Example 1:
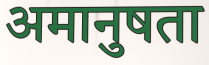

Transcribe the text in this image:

अमानुषता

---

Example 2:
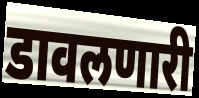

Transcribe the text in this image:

डावलणारी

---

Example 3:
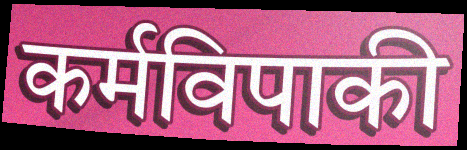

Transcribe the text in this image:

कर्मविपाकी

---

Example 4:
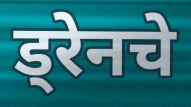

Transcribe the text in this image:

ड्रेनचे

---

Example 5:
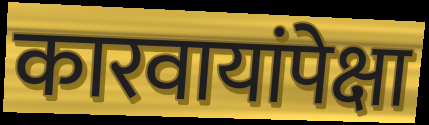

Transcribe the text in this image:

कारवायांपेक्षा